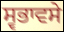
ਸ੍ਵਭਾਵਸੇ